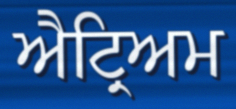
ਐਟ੍ਰਿਅਮ